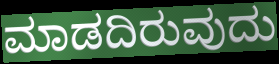
ಮಾಡದಿರುವುದು